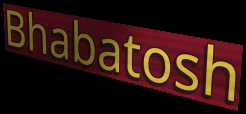
Bhabatosh